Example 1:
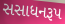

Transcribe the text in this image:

સસાધનરૂપ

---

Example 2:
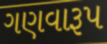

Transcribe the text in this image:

ગણવારૂપ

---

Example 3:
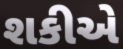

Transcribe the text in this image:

શકીએ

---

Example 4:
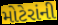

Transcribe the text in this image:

મોટેરાંની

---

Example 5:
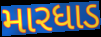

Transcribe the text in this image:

મારધાડ